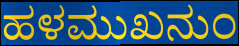
ಹಳಮುಖನುಂ